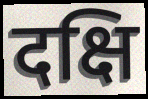
दक्षि